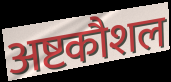
अष्टकौशल